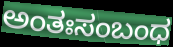
ಅಂತಃಸಂಬಂಧ